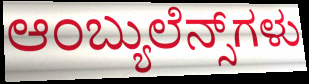
ಆಂಬ್ಯುಲೆನ್ಸ್‌ಗಳು